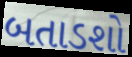
બતાડશો